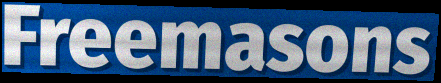
Freemasons